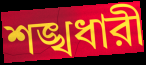
শঙ্খধারী